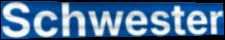
Schwester